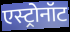
एस्‍ट्रोनॉट